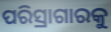
ପରିସ୍ରାଗାରକୁ